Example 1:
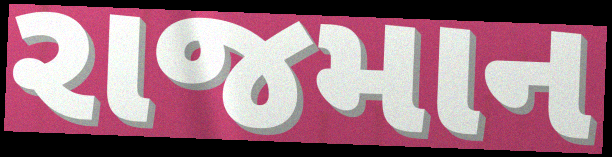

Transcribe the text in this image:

રાજમાન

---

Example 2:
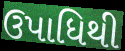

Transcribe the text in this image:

ઉપાધિથી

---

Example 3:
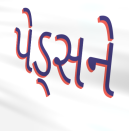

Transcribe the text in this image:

પેડ્સને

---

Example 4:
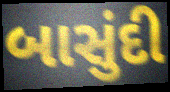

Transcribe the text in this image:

બાસુંદી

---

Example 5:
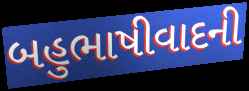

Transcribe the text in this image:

બહુભાષીવાદની